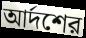
আর্দশের